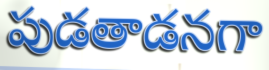
పుడతాడనగా